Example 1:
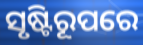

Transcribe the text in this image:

ସୃଷ୍ଟିରୂପରେ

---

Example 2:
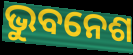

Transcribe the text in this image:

ଭୁବନେଶ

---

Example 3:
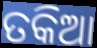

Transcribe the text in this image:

ତକିଆ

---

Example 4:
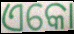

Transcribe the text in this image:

ଏକୋ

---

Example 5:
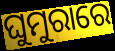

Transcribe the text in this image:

ଘୁମୁରାରେ